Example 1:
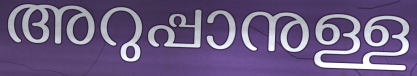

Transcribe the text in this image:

അറുപ്പാനുള്ള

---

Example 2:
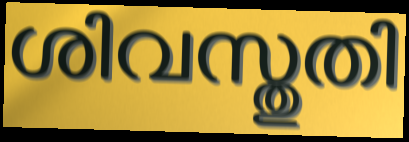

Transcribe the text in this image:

ശിവസ്തുതി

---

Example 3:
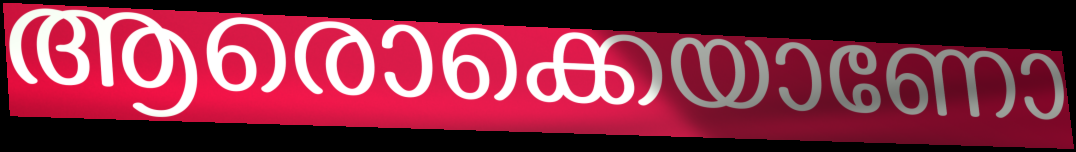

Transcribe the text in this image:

ആരൊക്കെയാണോ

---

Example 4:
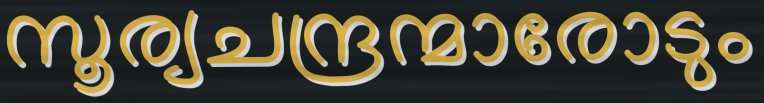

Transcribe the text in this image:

സൂര്യചന്ദ്രന്മാരോടും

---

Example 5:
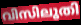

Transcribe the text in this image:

വിസിലൂതി